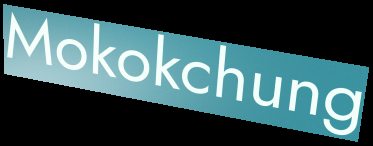
Mokokchung